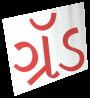
ગ્રૅડ